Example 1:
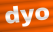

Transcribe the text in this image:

dyo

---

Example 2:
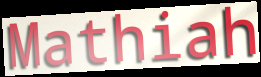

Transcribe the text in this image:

Mathiah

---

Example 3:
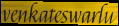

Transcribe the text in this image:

venkateswarlu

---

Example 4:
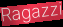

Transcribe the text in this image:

Ragazzi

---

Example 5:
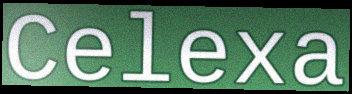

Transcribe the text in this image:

Celexa